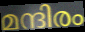
മന്ദിരം